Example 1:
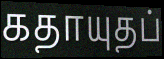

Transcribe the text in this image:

கதாயுதப்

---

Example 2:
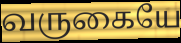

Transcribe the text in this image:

வருகையே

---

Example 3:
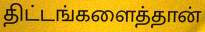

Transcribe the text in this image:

திட்டங்களைத்தான்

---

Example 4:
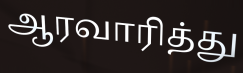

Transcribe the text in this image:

ஆரவாரித்து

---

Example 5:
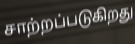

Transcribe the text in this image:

சாற்றப்படுகிறது